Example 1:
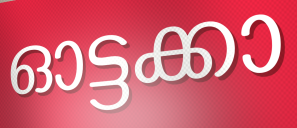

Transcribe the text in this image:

ഓട്ടക്കാ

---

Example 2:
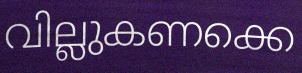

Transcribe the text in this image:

വില്ലുകണക്കെ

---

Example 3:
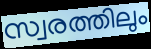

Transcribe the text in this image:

സ്വരത്തിലും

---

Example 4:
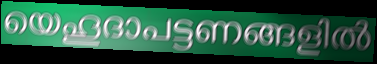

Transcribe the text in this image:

യെഹൂദാപട്ടണങ്ങളിൽ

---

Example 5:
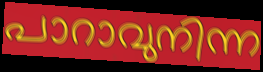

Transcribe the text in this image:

പാറാവുനിന്ന